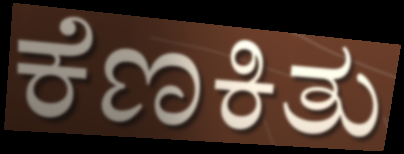
ಕೆಣಕಿತು